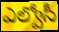
ఎల్వోసీ